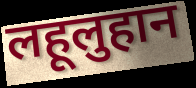
लहूलुहान